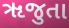
ૠજુતા